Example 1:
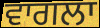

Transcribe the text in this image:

ਵਾਗਲਾ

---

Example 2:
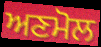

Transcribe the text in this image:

ਅਣਮੋਲ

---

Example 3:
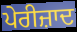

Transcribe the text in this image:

ਪੇਰੀਜ਼ਾਦ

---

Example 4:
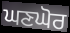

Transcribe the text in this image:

ਘਣਘੋਰ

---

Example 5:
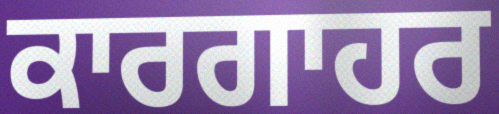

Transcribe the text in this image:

ਕਾਰਗਾਹਰ